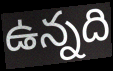
ఉన్నది